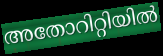
അതോറിറ്റിയിൽ